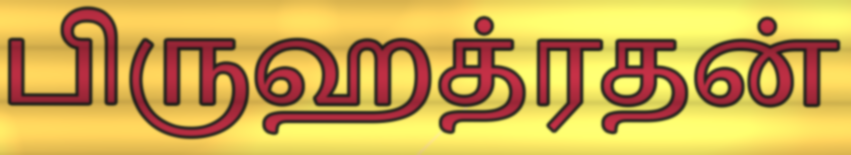
பிருஹத்ரதன்